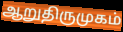
ஆறுதிருமுகம்